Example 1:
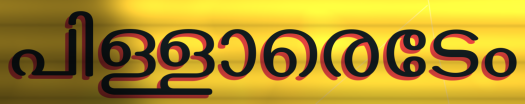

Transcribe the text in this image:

പിള്ളാരെടേം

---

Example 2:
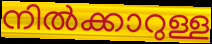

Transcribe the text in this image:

നിൽക്കാറുള്ള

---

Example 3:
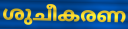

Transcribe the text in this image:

ശുചീകരണ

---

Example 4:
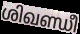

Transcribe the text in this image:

ശിഖണ്ഡീ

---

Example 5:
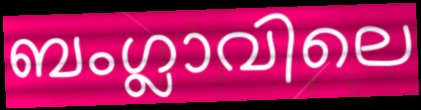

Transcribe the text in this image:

ബംഗ്ലാവിലെ